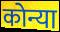
कोन्या